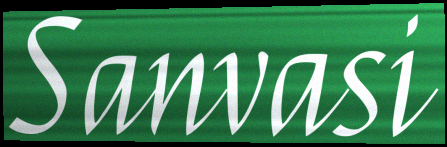
Sanvasi